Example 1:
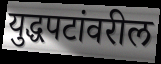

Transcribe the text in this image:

युद्धपटांवरील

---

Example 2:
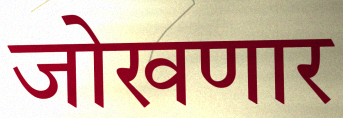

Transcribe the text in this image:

जोखणार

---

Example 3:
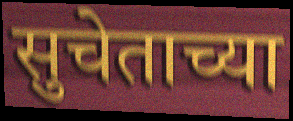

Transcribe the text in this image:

सुचेताच्या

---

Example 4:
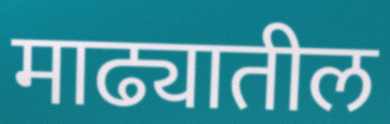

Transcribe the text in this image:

माढ्यातील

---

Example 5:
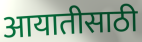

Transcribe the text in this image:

आयातीसाठी